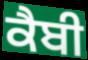
ਕੈਬੀ